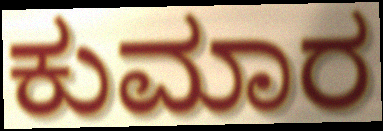
ಕುಮಾರ